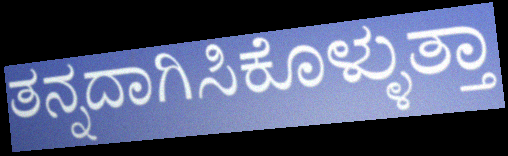
ತನ್ನದಾಗಿಸಿಕೊಳ್ಳುತ್ತಾ